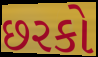
છરકો